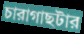
চারাগাছটার